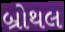
બ્રોથલ